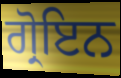
ਗ੍ਰੋਇਨ